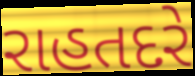
રાહતદરે